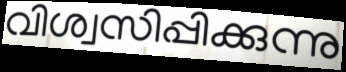
വിശ്വസിപ്പിക്കുന്നു